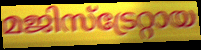
മജിസ്ട്രേറ്റായ